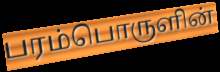
பரம்பொருளின்